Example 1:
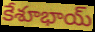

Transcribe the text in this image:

కేశూభాయ్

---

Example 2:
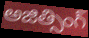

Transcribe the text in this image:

అజిత్సింగ్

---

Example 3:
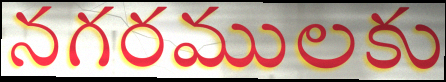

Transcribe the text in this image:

నగరములకు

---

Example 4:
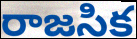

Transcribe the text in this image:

రాజసిక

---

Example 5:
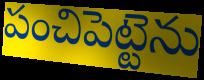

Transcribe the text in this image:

పంచిపెట్టెను